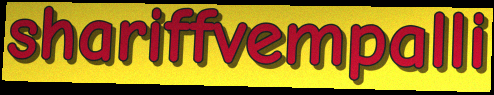
shariffvempalli